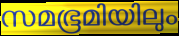
സമഭൂമിയിലും